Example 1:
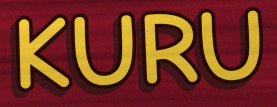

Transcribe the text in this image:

KURU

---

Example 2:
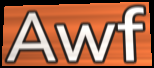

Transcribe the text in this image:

Awf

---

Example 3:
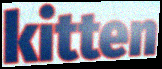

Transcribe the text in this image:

kitten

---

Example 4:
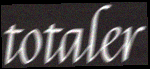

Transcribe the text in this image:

totaler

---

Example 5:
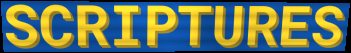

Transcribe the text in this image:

SCRIPTURES